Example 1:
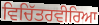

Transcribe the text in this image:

ਵਿਚਿੱਤਰਵੀਰਿਆ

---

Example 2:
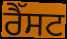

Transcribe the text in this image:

ਰੈੱਸਟ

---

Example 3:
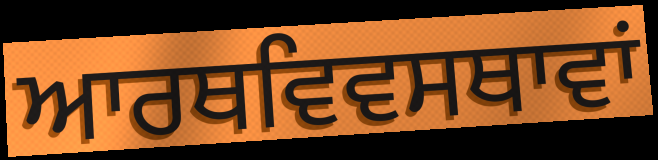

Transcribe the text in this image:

ਆਰਥਵਿਵਸਥਾਵਾਂ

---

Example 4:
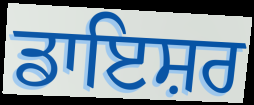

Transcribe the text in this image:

ਡਾਇਸ਼ਰ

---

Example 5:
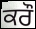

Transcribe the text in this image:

ਕਰੌ